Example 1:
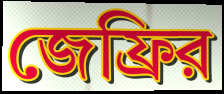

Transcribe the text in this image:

জেফ্রির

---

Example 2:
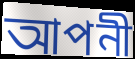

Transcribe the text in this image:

আপনী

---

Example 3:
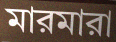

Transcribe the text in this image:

মারমারা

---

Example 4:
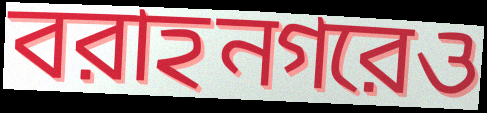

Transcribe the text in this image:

বরাহনগরেও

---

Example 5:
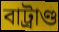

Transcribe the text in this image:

বাট্রাণ্ড